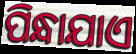
ପିନ୍ଧାଯାଏ